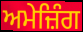
ਅਮੇਜ਼ਿੰਗ